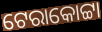
ଟେରାକୋଟ୍ଟା